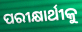
ପରୀକ୍ଷାର୍ଥୀକୁ